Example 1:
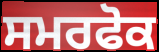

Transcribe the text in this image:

ਸਮਰਫੋਕ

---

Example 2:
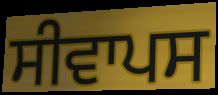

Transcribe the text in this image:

ਸੀਵਾਪਸ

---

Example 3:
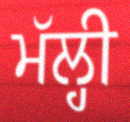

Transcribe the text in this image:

ਮੱਲ੍ਹੀ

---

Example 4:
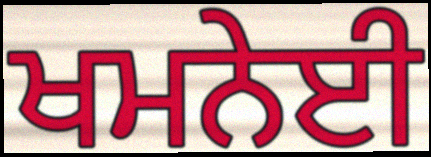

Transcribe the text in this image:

ਖਮਨੇਈ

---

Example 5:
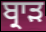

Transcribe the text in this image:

ਬ੍ਰਾੜ